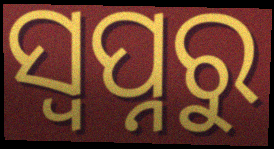
ସ୍ବପ୍ନରୁ